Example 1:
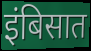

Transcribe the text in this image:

इंबिसात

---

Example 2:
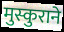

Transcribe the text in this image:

मुस्‍कुराने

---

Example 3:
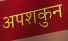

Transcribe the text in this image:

अपशकुन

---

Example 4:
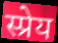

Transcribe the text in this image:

स्प्रेय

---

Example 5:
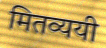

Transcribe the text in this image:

मितव्ययी